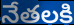
నేతలకి